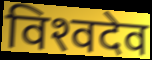
विश्वदेव